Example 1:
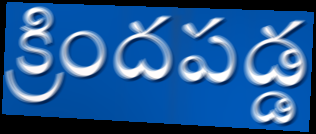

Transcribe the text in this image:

క్రిందపడ్డ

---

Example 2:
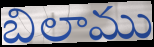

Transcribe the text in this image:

బిలాము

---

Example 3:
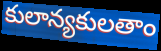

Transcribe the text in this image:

కులాన్యకులతాం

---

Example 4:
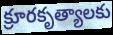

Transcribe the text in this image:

క్రూరకృత్యాలకు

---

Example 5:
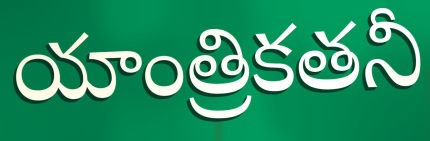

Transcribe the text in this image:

యాంత్రికతనీ